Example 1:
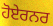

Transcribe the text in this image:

ਹੋਏਰਨਰ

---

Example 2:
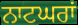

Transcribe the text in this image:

ਨਾਟਘਰਾਂ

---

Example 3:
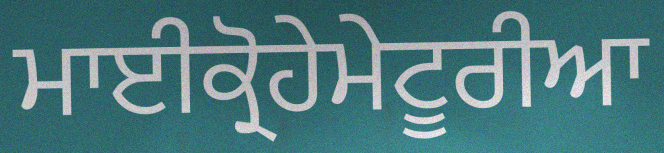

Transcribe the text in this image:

ਮਾਈਕ੍ਰੋਹੇਮੇਟੂਰੀਆ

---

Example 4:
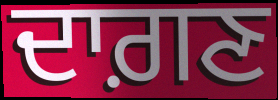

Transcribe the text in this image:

ਦਾਗ਼ਣ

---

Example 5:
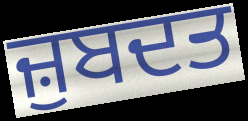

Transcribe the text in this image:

ਜ਼ੁਬਦਤ